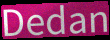
Dedan